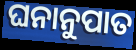
ଘନାନୁପାତ